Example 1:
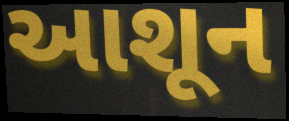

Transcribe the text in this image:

આશૂન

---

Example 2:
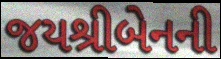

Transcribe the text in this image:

જયશ્રીબેનની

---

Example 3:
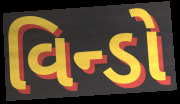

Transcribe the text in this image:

વિન્ડો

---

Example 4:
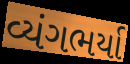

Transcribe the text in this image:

વ્યંગભર્યા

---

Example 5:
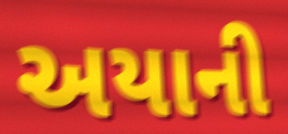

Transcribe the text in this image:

અયાની